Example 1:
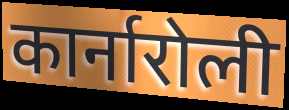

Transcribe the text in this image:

कार्नारोली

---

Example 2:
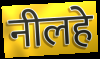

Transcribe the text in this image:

नीलहे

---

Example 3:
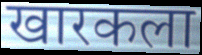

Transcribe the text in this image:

खारकला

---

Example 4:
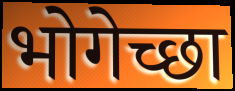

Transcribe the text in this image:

भोगेच्छा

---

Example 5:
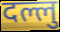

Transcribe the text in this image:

दल्लु